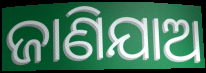
ଜାଣିଯାଅ